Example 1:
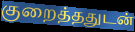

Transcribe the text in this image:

குறைத்ததுடன்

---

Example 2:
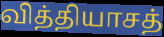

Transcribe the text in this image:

வித்தியாசத்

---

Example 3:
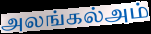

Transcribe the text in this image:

அலங்கல்அம்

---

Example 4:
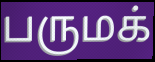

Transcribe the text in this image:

பருமக்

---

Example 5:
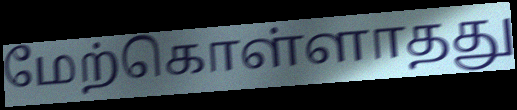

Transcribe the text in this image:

மேற்கொள்ளாதது